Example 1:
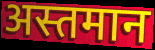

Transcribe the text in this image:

अस्तमान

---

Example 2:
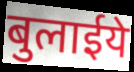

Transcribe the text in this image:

बुलाईये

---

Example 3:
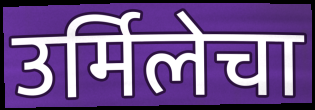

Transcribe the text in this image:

उर्मिलेचा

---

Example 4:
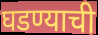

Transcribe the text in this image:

घडण्याची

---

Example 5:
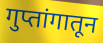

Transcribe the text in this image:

गुप्तांगातून